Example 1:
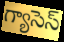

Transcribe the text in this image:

గ్యాసెస్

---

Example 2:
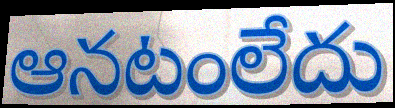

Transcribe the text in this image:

ఆనటంలేదు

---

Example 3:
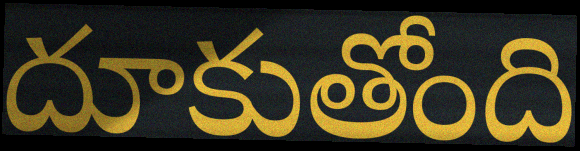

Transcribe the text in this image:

దూకుతోంది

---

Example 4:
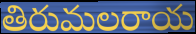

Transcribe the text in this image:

తిరుమలరాయ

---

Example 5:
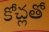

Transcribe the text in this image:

కోచ్లతో